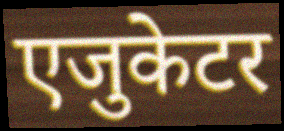
एजुकेटर